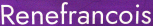
Renefrancois